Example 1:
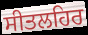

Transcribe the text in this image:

ਸੀਤਲਹਿਰ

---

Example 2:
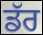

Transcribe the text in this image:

ਡੱਰ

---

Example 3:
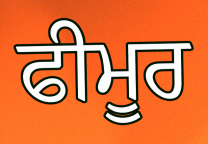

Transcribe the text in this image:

ਫੀਮੂਰ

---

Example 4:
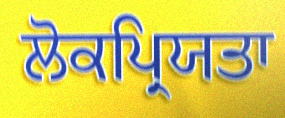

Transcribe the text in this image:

ਲੋਕਪ੍ਰਿਯਤਾ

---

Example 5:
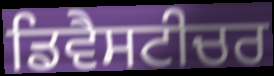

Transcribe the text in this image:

ਡਿਵੈਸਟੀਚਰ